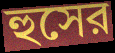
হুসের